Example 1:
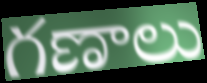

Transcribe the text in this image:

గణాలు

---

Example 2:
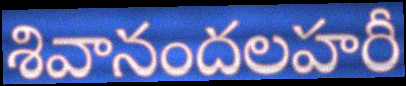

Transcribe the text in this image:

శివానందలహరీ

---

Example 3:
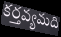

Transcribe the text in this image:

కర్తవ్యమది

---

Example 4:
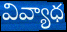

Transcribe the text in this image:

వివ్యాధ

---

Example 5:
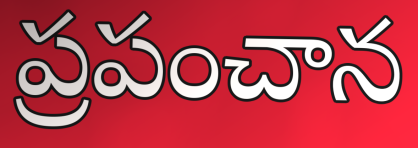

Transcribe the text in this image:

ప్రపంచాన